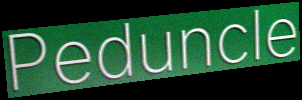
Peduncle